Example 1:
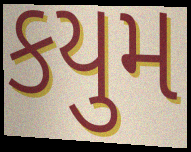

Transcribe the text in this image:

કયુમ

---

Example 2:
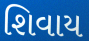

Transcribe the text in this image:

શિવાય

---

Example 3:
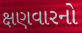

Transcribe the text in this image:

ક્ષણવારનો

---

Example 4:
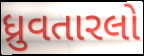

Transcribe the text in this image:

ધ્રુવતારલો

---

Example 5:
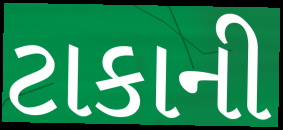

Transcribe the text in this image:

ટાકાની